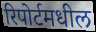
रिपोर्टमधील